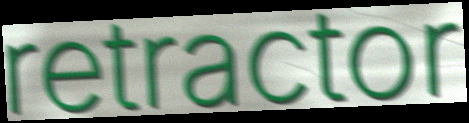
retractor